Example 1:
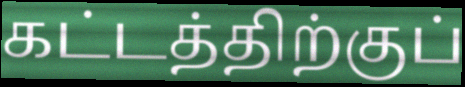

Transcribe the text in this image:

கட்டத்திற்குப்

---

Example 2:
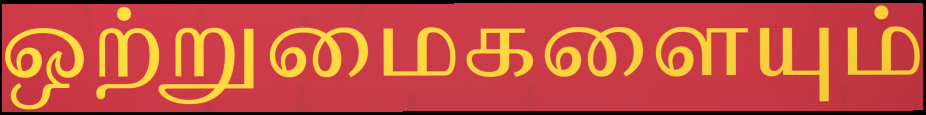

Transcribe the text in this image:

ஒற்றுமைகளையும்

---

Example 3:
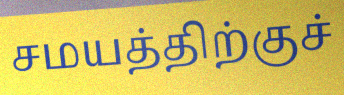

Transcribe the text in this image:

சமயத்திற்குச்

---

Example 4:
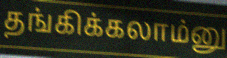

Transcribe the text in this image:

தங்கிக்கலாம்னு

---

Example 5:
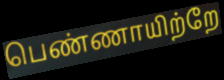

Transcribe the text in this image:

பெண்ணாயிற்றே